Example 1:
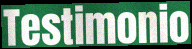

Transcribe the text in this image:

Testimonio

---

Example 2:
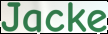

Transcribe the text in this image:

Jacke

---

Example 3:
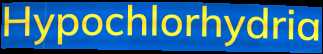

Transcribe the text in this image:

Hypochlorhydria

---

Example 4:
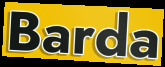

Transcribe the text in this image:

Barda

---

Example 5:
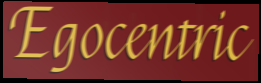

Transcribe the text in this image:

Egocentric